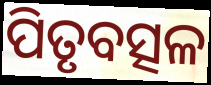
ପିତୃବତ୍ସଳ